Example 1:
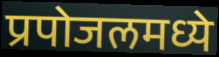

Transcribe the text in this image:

प्रपोजलमध्ये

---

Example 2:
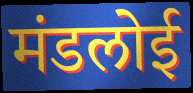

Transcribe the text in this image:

मंडलोई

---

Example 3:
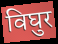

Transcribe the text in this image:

विघुर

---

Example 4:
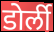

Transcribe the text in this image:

डोर्ली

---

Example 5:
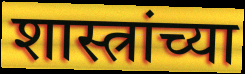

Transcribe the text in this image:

शास्त्रांच्या